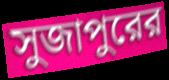
সুজাপুরের